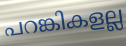
പറങ്കികളല്ല